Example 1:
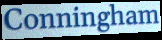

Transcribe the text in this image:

Conningham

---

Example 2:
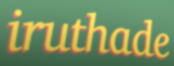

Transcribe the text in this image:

iruthade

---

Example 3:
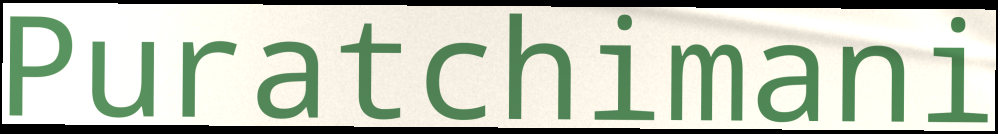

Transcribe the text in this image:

Puratchimani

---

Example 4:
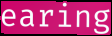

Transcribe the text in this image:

earing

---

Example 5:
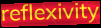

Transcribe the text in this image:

reflexivity